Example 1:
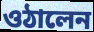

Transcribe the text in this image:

ওঠালেন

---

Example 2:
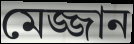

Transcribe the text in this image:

মেজ্জান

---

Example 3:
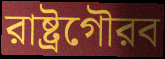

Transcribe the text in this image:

রাষ্ট্রগৌরব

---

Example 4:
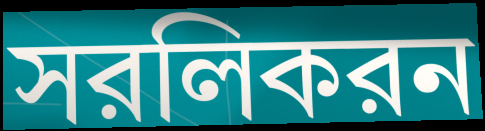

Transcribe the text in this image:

সরলিকরন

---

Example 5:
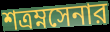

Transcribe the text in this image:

শত্রম্নসেনার